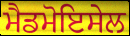
ਮੈਡਮੋਇਸੇਲ